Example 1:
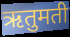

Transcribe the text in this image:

ऋतुमती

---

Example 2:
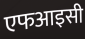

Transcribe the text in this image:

एफआइसी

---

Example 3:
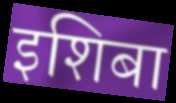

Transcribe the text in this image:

इशिबा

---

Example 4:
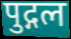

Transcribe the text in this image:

पुद्गल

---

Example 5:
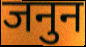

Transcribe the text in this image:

जनुन